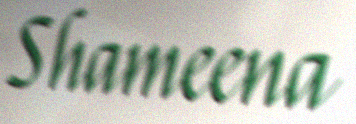
Shameena